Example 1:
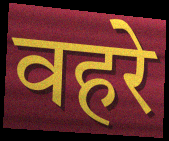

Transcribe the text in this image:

वहरे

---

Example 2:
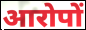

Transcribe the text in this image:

आरोपों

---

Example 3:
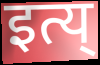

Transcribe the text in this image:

इत्य्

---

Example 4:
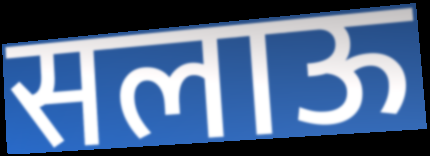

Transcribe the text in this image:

सलाऊ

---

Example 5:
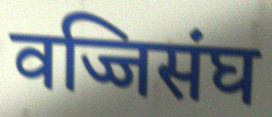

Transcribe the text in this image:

वज्जिसंघ